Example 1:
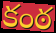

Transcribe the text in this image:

కంఠ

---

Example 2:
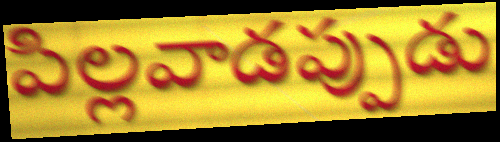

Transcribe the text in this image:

పిల్లవాడప్పుడు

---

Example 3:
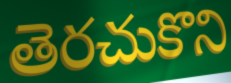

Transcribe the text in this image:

తెరచుకొని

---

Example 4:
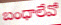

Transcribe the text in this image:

బంధాలేవో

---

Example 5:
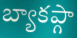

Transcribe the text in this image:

బ్యాకప్గా